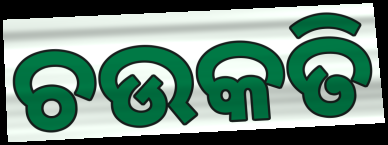
ଚଉକତି